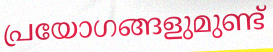
പ്രയോഗങ്ങളുമുണ്ട്